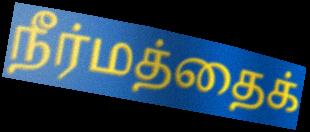
நீர்மத்தைக்